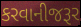
કરવાનીજરૂર